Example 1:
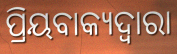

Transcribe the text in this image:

ପ୍ରିୟବାକ୍ୟଦ୍ୱାରା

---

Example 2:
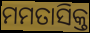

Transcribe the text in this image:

ମମତାସିକ୍ତ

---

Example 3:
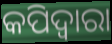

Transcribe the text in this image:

କପିଦ୍ୱାରା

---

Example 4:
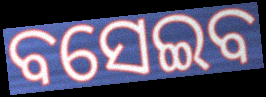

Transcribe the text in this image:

ବସେଇବ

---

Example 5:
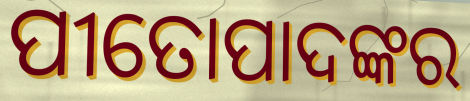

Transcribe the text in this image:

ପୀତୋପାଦଙ୍କର